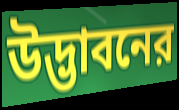
উদ্ভাবনের